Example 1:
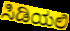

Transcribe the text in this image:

ಸಿಡಿಯಲಿ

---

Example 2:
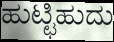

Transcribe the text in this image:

ಹುಟ್ಟಿಹುದು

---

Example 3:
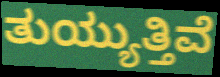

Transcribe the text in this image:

ತುಯ್ಯುತ್ತಿವೆ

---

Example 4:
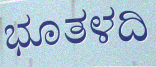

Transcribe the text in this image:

ಭೂತಳದಿ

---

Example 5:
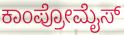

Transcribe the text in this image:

ಕಾಂಪ್ರೋಮೈಸ್